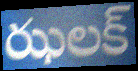
ఝలక్